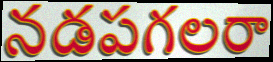
నడపగలరా